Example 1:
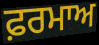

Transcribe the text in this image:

ਫ਼ਰਮਾਅ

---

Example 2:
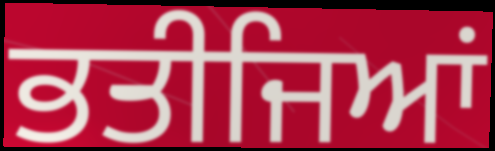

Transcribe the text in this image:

ਭਤੀਜਿਆਂ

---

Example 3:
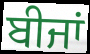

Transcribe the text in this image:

ਬੀਜਾਂ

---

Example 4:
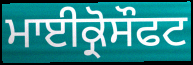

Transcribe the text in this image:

ਮਾਈਕ੍ਰੋਸੌਫਟ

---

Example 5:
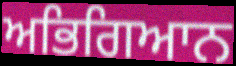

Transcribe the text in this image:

ਅਭਿਗਿਆਨ